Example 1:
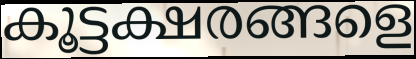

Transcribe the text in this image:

കൂട്ടക്ഷരങ്ങളെ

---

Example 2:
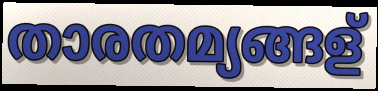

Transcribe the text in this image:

താരതമ്യങ്ങള്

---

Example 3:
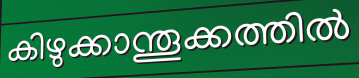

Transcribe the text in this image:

കിഴുക്കാന്തൂക്കത്തിൽ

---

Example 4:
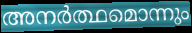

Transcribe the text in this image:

അനർത്ഥമൊന്നും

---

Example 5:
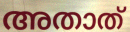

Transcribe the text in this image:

അതാത്